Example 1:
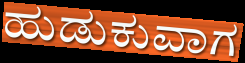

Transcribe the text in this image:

ಹುಡುಕುವಾಗ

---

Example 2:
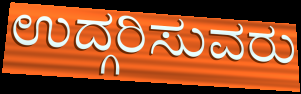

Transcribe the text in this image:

ಉದ್ಗರಿಸುವರು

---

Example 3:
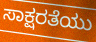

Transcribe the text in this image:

ಸಾಕ್ಷರತೆಯು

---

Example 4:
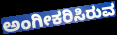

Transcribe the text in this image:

ಅಂಗೀಕರಿಸಿರುವ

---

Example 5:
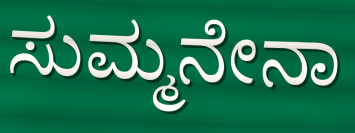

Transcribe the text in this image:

ಸುಮ್ಮನೇನಾ